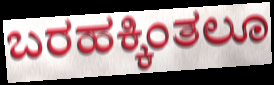
ಬರಹಕ್ಕಿಂತಲೂ